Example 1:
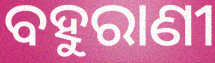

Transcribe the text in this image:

ବହୁରାଣୀ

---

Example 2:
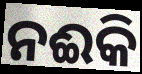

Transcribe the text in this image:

ନଈକି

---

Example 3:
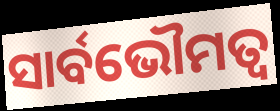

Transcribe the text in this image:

ସାର୍ବଭୌମତ୍ଵ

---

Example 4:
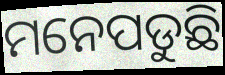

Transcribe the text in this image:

ମନେପଡୁଛି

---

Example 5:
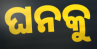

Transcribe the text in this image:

ଘନକୁ